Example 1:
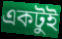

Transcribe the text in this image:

একটুই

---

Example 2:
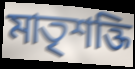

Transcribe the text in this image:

মাতৃশক্তি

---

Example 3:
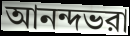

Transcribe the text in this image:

আনন্দভরা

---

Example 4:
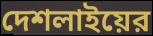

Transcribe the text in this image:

দেশলাইয়ের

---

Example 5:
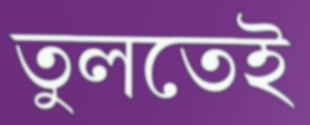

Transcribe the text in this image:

তুলতেই